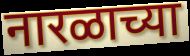
नारळाच्या